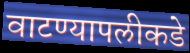
वाटण्यापलीकडे